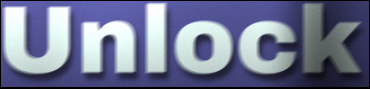
Unlock